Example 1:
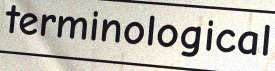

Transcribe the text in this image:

terminological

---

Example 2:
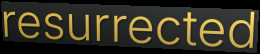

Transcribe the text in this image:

resurrected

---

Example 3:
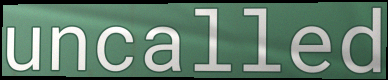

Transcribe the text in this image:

uncalled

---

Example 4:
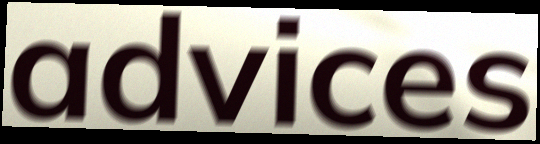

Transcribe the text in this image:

advices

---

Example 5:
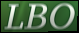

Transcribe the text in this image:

LBO